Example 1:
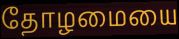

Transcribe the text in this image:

தோழமையை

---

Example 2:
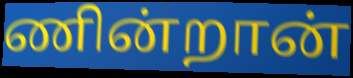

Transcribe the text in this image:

ணின்றான்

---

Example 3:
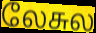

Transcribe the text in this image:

லேசுல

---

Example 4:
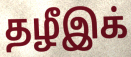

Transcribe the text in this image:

தழீஇக்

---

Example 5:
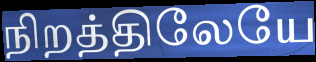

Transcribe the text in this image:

நிறத்திலேயே